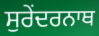
ਸੁਰੇਂਦਰਨਾਥ